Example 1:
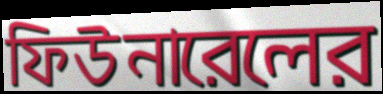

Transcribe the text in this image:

ফিউনারেলের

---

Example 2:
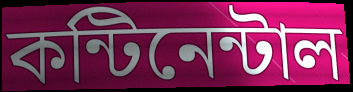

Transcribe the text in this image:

কন্টিনেন্টাল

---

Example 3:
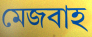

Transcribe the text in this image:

মেজবাহ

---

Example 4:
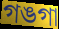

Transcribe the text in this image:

গঙগা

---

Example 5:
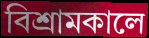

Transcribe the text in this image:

বিশ্রামকালে